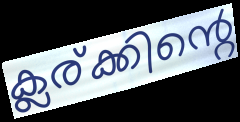
ക്ലര്ക്കിന്റെ